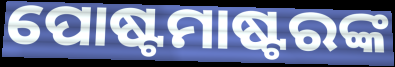
ପୋଷ୍ଟମାଷ୍ଟରଙ୍କ